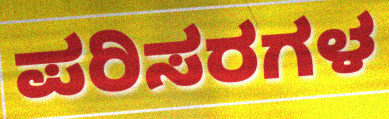
ಪರಿಸರಗಳ